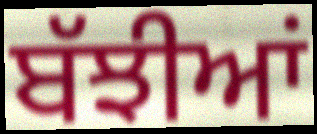
ਬੱਝੀਆਂ